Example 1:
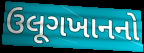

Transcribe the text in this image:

ઉલૂગખાનનો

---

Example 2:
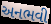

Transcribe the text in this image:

અનભવી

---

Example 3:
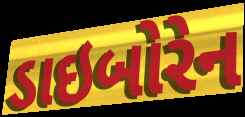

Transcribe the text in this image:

ડાઇબોરેન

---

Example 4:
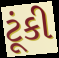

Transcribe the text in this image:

ટૂંકી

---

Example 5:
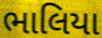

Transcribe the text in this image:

ભાલિયા